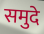
समुदे